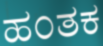
ಹಂತಕ